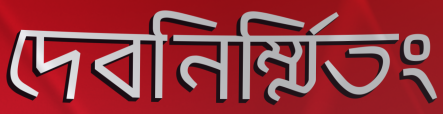
দেবনির্ম্মিতং